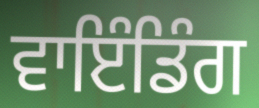
ਵਾਇੰਡਿੰਗ